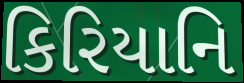
કિરિયાનિ